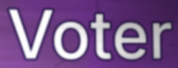
Voter